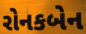
રોનકબેન